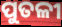
ପୁତଳୀ